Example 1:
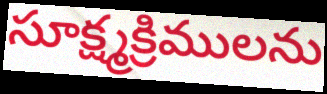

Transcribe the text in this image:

సూక్ష్మక్రిములను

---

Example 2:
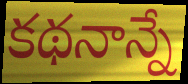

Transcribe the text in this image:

కథనాన్నే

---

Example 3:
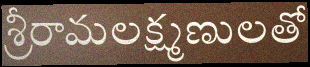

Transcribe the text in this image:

శ్రీరామలక్ష్మణులతో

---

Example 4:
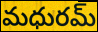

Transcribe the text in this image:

మధురమ్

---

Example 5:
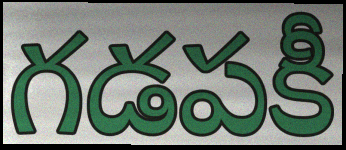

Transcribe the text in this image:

గడపకీ